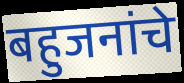
बहुजनांचे